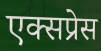
एक्सप्रेस